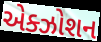
એક્ઝોશન